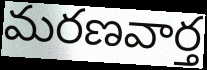
మరణవార్త